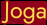
Joga